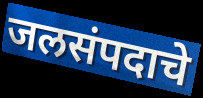
जलसंपदाचे